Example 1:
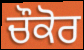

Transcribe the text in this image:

ਚੌਕੋਰ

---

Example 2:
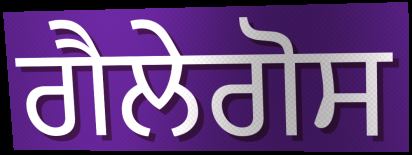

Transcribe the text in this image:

ਗੈਲੇਗੋਸ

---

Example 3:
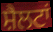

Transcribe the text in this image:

ਸ਼ੈਲਟਾਂ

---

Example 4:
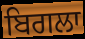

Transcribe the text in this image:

ਬਿਗਲਾ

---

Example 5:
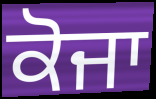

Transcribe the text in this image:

ਕੋਜਾ